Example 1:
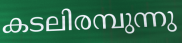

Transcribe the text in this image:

കടലിരമ്പുന്നു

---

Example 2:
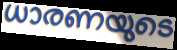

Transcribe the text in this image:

ധാരണയുടെ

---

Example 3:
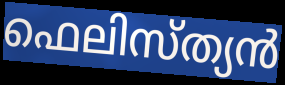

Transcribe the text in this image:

ഫെലിസ്ത്യൻ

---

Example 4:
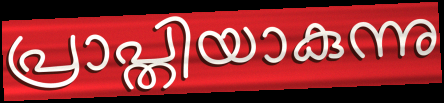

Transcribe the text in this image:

പ്രാപ്തിയാകുന്നു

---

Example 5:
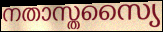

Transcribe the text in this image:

നതാസ്തസ്യൈ